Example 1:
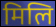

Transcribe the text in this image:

मिलि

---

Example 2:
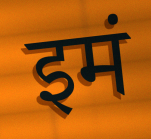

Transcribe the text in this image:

इमं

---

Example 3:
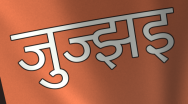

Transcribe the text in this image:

जुज्झइ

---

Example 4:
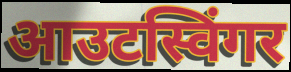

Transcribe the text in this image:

आउटस्विंगर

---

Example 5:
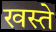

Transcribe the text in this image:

खस्ते